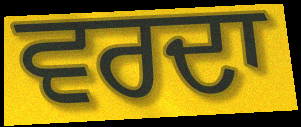
ਵਰਦਾ